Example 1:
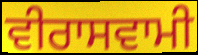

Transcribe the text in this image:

ਵੀਰਾਸਵਾਮੀ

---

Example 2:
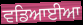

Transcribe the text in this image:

ਵਡਿਆਈਆ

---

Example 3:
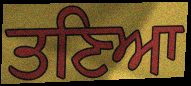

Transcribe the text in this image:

ਤਣਿਆ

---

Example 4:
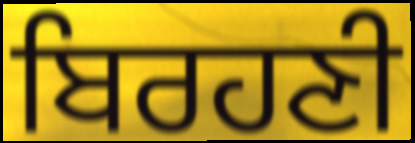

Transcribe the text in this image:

ਬਿਰਹਣੀ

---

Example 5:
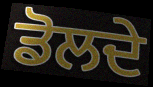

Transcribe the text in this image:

ਡੋਲਦੇ